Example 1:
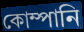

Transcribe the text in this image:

কোম্পানি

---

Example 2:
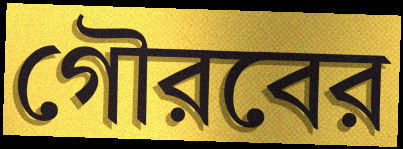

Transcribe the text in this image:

গৌরবের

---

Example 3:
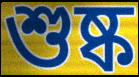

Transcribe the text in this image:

শুষ্ক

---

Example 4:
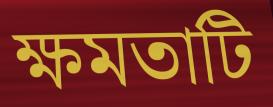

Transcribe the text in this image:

ক্ষমতাটি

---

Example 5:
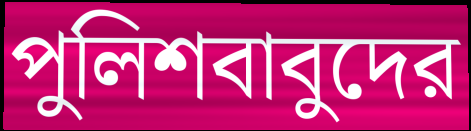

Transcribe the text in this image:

পুলিশবাবুদের